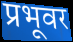
प्रभूवर